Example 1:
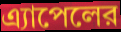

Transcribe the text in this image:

এ্যাপেলের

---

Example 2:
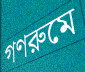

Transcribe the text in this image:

গণরুমে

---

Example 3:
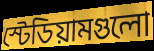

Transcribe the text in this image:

স্টেডিয়ামগুলো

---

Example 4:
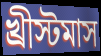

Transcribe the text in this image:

খ্রীস্টমাস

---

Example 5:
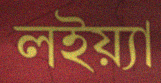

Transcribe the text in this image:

লইয়্যা